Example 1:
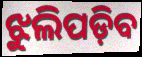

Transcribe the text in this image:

ଝୁଲିପଡ଼ିବ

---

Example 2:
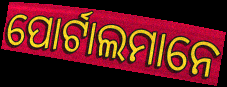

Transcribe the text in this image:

ପୋର୍ଟାଲମାନେ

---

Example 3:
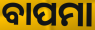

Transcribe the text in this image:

ବାପମା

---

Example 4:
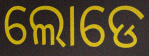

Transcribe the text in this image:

ଲୋଡେ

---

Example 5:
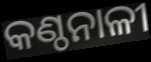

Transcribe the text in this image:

କଣ୍ଠନାଳୀ